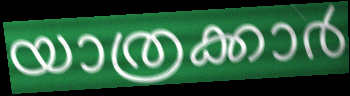
യാത്രക്കാർ